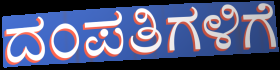
ದಂಪತಿಗಳಿಗೆ